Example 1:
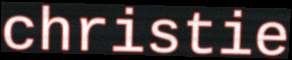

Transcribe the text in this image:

christie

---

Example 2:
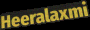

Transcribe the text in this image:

Heeralaxmi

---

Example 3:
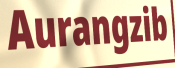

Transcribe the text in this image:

Aurangzib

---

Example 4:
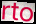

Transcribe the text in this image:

rto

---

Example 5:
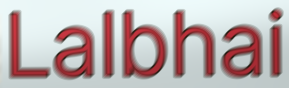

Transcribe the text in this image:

Lalbhai